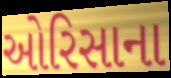
ઓરિસાના